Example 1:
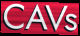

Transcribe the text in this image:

CAVs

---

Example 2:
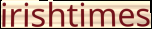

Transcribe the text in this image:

irishtimes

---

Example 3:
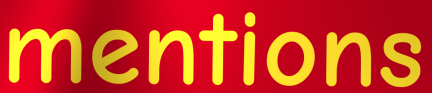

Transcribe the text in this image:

mentions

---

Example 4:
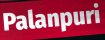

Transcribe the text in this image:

Palanpuri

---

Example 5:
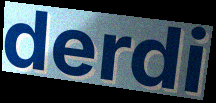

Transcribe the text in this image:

derdi